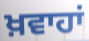
ਖ਼ਵਾਹਾਂ